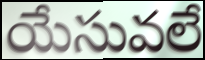
యేసువలే